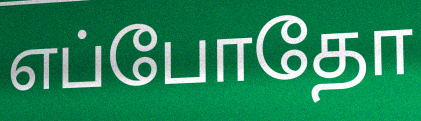
எப்போதோ